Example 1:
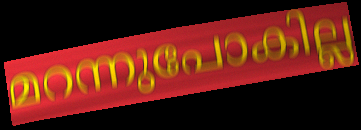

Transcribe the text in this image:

മറന്നുപോകില്ല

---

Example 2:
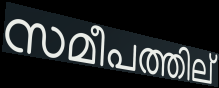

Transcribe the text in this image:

സമീപത്തില്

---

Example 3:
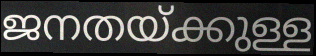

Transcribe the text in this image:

ജനതയ്ക്കുള്ള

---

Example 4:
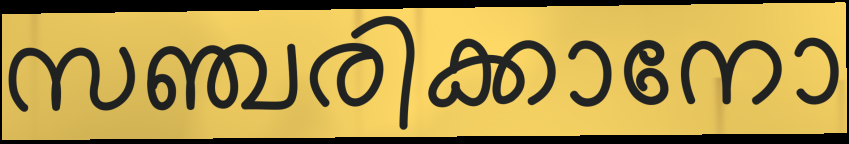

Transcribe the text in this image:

സഞ്ചരിക്കാനോ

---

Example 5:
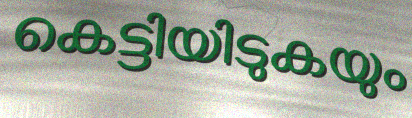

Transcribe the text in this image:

കെട്ടിയിടുകയും